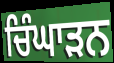
ਚਿੰਘਾੜਨ